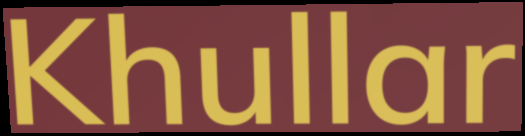
Khullar